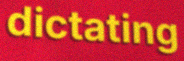
dictating